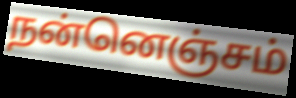
நன்னெஞ்சம்